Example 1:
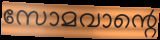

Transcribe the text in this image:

സോമവാന്റെ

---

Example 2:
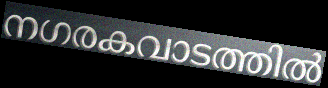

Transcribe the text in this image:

നഗരകവാടത്തിൽ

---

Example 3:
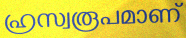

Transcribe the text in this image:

ഹ്രസ്വരൂപമാണ്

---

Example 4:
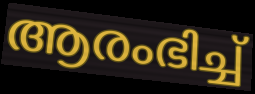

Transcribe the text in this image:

ആരംഭിച്ച്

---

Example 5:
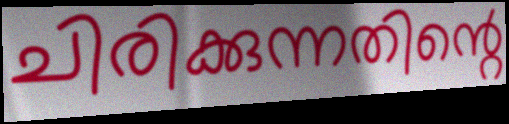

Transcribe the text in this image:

ചിരിക്കുന്നതിന്റെ